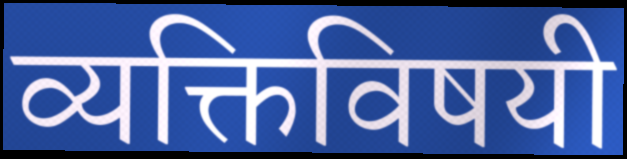
व्यक्तिविषयी